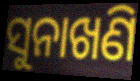
ସୁନାଖଣି